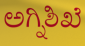
ಅಗ್ನಿಶಿಖೆ